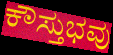
ಕೌಸ್ತುಭವು